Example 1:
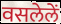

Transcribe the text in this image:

वसलेलें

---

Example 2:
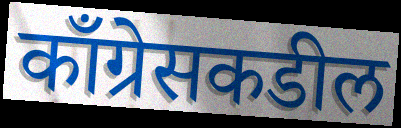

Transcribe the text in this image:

काँग्रेसकडील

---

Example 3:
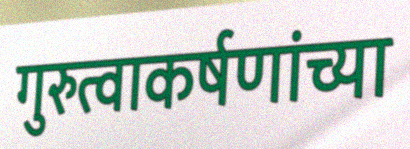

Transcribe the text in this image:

गुरुत्वाकर्षणांच्या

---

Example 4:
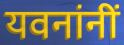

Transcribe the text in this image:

यवनांनीं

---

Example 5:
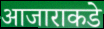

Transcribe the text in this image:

आजाराकडे